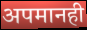
अपमानही